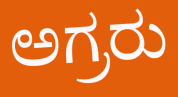
ಅಗ್ರರು